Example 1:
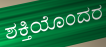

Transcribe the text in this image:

ಶಕ್ತಿಯೊಂದರ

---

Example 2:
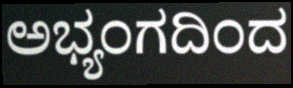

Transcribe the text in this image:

ಅಭ್ಯಂಗದಿಂದ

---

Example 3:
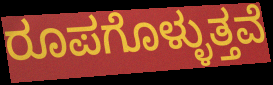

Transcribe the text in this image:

ರೂಪಗೊಳ್ಳುತ್ತವೆ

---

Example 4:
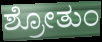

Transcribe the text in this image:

ಶ್ರೋತುಂ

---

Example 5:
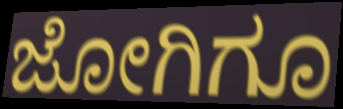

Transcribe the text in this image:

ಜೋಗಿಗೂ